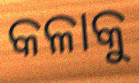
କଳାକୁ